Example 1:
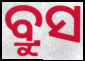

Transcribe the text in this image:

ବ୍ରୁସ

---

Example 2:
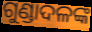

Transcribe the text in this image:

ଗୁଣ୍ଡାଦଳଙ୍କ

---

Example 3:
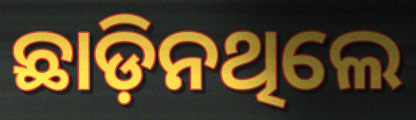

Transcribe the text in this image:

ଛାଡ଼ିନଥିଲେ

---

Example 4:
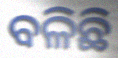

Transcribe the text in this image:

ବଳିଛି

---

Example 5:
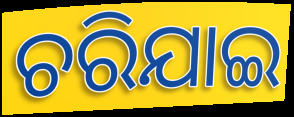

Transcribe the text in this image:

ଚରିଯାଇ